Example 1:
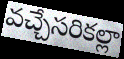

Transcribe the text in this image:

వచ్చేసరికల్లా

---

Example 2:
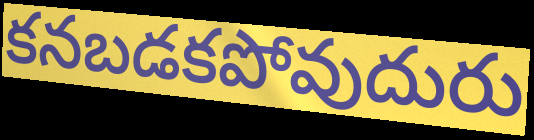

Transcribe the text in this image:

కనబడకపోవుదురు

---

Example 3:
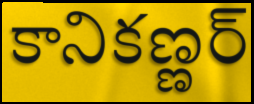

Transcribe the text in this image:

కానికణ్ణర్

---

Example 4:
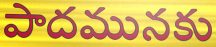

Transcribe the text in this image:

పాదమునకు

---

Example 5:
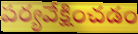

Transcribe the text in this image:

పర్యవేక్షించడం